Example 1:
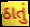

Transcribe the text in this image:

ઠાતું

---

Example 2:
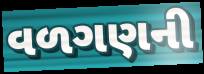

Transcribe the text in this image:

વળગણની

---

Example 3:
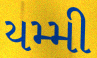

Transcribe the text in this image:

યમ્મી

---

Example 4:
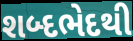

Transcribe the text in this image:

શબ્દભેદથી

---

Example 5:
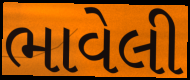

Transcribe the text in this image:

ભાવેલી